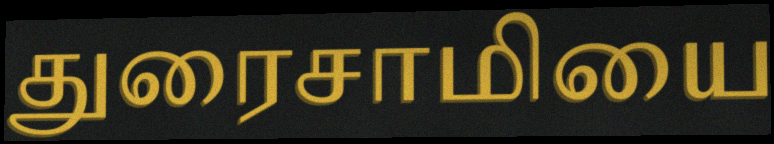
துரைசாமியை